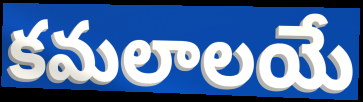
కమలాలయే